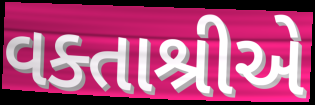
વક્તાશ્રીએ